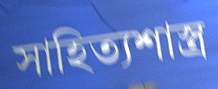
সাহিত্য়শাস্ত্ৰ